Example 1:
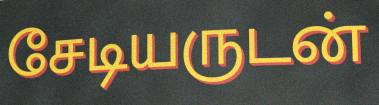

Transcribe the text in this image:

சேடியருடன்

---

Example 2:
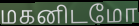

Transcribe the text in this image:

மகனிடமோ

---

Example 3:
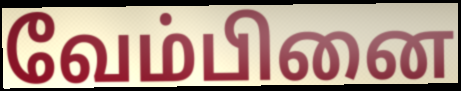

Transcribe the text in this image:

வேம்பினை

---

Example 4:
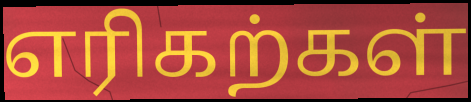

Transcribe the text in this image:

எரிகற்கள்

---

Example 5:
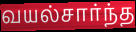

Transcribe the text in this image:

வயல்சார்ந்த